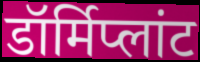
डॉर्मिप्लांट